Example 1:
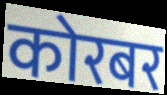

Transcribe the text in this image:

कोरबर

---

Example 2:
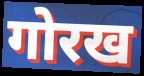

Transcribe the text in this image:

गोरख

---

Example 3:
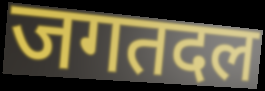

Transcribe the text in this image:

जगतदल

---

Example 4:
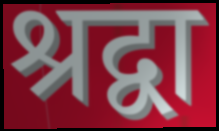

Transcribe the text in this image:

श्रद्वा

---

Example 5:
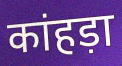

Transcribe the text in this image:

कांहड़ा